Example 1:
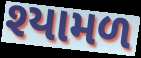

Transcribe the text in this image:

શ્યામળ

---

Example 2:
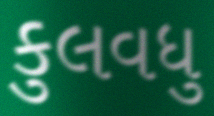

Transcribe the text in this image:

કુલવધુ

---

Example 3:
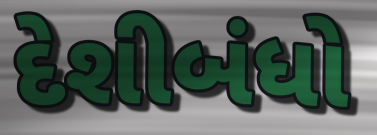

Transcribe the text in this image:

દેશીબંધો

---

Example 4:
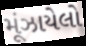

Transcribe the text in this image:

મૂંઝાયેલો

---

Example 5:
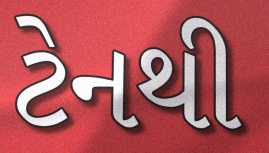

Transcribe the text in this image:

ટેનથી